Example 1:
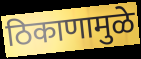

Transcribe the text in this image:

ठिकाणामुळे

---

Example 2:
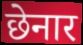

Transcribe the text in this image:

छेनार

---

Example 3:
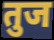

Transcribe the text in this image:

तुज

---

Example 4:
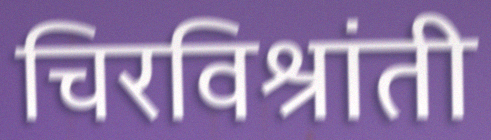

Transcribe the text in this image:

चिरविश्रांती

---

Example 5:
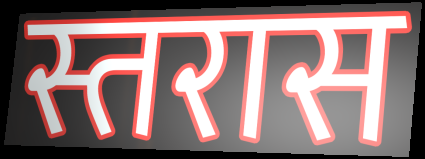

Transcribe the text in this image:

स्तरास